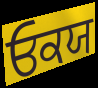
ਓਕਯ